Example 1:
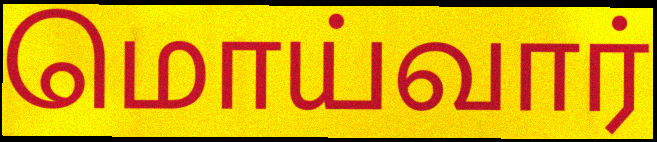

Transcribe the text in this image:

மொய்வார்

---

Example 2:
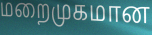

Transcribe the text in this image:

மறைமுகமான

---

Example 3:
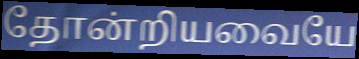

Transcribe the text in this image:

தோன்றியவையே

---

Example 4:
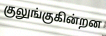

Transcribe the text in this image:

குலுங்குகின்றன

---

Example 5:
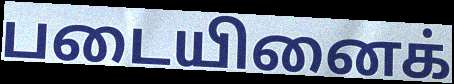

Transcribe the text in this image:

படையினைக்